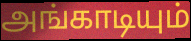
அங்காடியும்